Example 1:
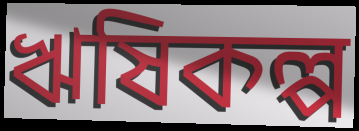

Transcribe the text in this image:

ঋষিকল্প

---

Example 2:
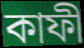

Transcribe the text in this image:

কাফী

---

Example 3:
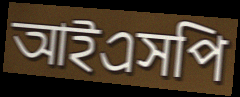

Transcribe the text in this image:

আইএসপি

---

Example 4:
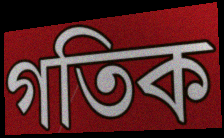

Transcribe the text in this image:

গতিক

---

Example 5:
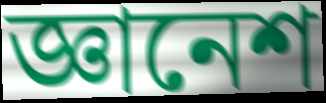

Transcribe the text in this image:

জ্ঞানেশ